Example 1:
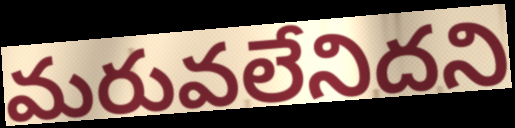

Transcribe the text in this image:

మరువలేనిదని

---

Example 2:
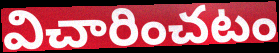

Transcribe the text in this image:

విచారించటం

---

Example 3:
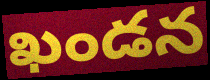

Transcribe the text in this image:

ఖండన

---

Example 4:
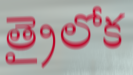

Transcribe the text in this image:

త్రైలోక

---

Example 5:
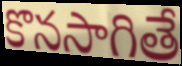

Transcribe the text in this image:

కొనసాగితే